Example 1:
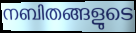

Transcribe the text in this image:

നബിതങ്ങളുടെ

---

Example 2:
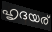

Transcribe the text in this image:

ഹൃദയര്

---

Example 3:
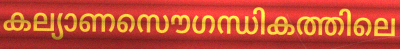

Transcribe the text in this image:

കല്യാണസൌഗന്ധികത്തിലെ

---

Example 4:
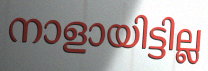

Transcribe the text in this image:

നാളായിട്ടില്ല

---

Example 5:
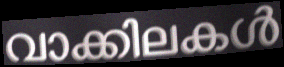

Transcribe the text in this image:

വാക്കിലകൾ